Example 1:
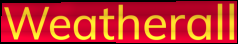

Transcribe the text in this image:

Weatherall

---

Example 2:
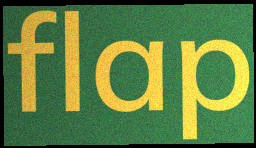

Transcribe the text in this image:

flap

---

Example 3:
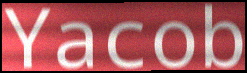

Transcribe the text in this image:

Yacob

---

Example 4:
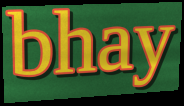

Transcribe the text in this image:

bhay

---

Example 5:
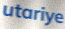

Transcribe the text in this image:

utariye